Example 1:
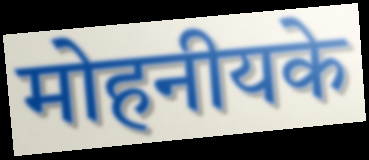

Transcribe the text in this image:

मोहनीयके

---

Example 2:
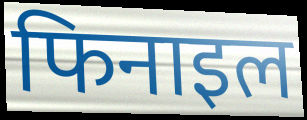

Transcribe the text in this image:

फिनाइल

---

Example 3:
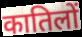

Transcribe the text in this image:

कातिलों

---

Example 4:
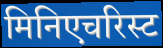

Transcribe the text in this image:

मिनिएचरिस्ट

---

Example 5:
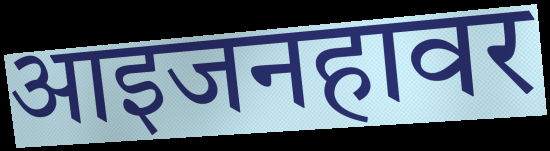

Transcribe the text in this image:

आइजनहावर